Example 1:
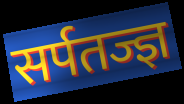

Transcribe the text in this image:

सर्पतज्ज्ञ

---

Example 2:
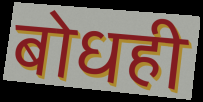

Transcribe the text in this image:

बोधही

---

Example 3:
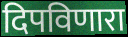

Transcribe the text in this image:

दिपविणारा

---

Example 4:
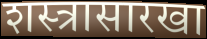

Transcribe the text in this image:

शस्त्रासारखा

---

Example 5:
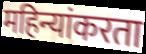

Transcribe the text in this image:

महिन्यांकरता